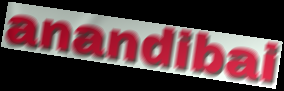
anandibai